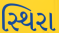
સ્થિરા